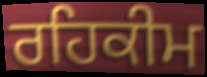
ਰਹਿਕੀਮ